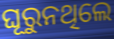
ଘୂରୁନଥିଲେ